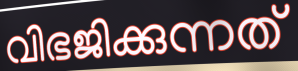
വിഭജിക്കുന്നത്